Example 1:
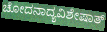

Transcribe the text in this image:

ಚೋದನಾದ್ಯವಿಶೇಷಾತ್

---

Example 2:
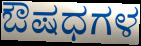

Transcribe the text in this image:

ಔಷಧಗಳ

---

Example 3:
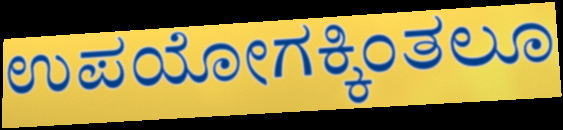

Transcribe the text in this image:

ಉಪಯೋಗಕ್ಕಿಂತಲೂ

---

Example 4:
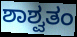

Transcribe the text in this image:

ಶಾಶ್ವತಂ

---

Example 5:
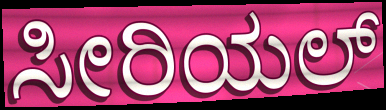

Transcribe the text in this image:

ಸೀರಿಯಲ್